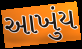
આખુંય